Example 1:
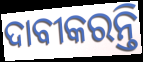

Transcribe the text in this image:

ଦାବୀକରନ୍ତି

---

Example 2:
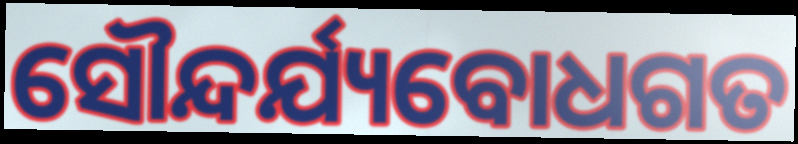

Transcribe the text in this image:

ସୌନ୍ଦର୍ଯ୍ୟବୋଧଗତ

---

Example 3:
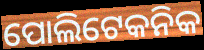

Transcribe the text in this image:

ପୋଲିଟେକନିକ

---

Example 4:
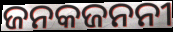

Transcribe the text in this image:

ଜନକଜନନୀ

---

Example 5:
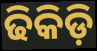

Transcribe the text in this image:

ଢିକିଡ଼ି